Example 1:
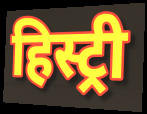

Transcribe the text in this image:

हिस्ट्री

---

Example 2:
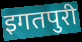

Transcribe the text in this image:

इगतपुरी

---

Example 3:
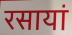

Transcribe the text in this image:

रसायां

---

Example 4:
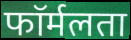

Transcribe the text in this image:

फॉर्मलता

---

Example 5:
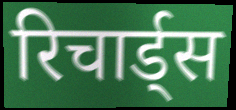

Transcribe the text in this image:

रिचार्ड्स